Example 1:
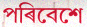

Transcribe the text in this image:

পৰিবেশে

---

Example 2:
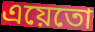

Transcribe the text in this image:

এয়েতো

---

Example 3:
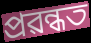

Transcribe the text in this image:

প্ৰৱন্ধত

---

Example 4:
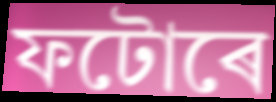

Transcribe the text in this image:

ফটোৰে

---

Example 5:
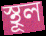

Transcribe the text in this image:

স্থূল